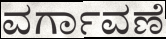
ವರ್ಗಾವಣೆ